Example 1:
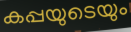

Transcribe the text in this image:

കപ്പയുടെയും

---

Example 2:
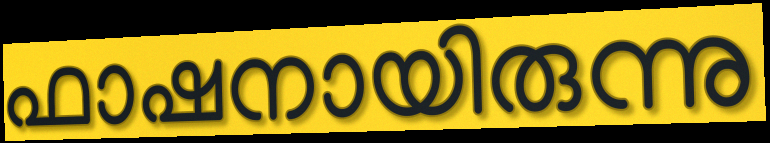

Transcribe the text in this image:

ഫാഷനായിരുന്നു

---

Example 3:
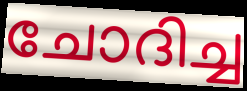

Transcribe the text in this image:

ചോദിച്ച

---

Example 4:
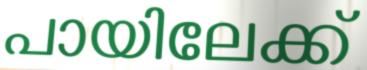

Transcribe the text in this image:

പായിലേക്ക്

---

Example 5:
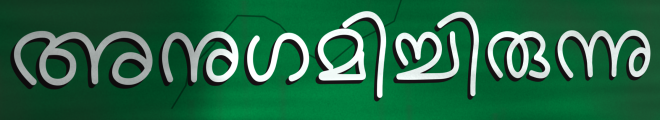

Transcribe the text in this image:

അനുഗമിച്ചിരുന്നു